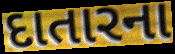
દાતારના